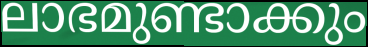
ലാഭമുണ്ടാക്കും